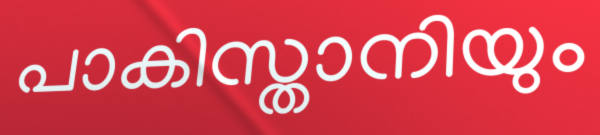
പാകിസ്താനിയും